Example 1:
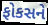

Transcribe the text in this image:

ફોકસને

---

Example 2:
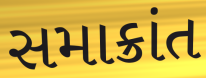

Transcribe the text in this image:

સમાક્રાંત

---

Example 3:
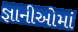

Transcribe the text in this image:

જ્ઞાનીઓમાં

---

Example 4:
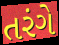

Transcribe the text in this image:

તરંગે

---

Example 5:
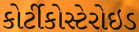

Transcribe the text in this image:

કોર્ટીકોસ્ટેરોઇડ